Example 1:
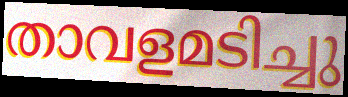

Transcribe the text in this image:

താവളമടിച്ചു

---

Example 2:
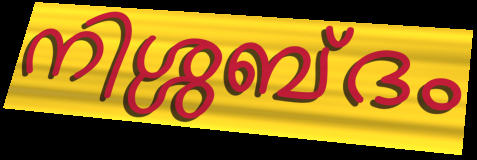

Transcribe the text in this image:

നിശ്ശബ്ദം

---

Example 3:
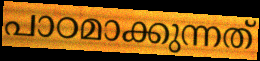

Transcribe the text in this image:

പാഠമാക്കുന്നത്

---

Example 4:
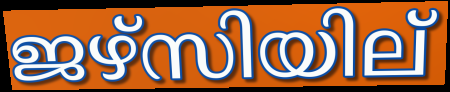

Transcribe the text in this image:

ജഴ്സിയില്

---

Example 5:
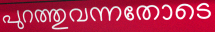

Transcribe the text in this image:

പുറത്തുവന്നതോടെ